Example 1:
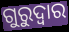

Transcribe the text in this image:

ଗୁରୁଦ୍ଵାର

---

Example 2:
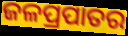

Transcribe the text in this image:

ଜଳପ୍ରପାତର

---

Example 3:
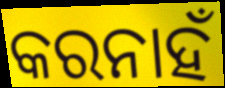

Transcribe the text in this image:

କରନାହଁ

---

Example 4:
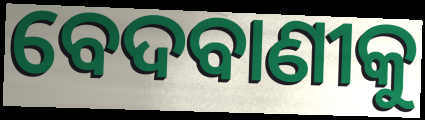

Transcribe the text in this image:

ବେଦବାଣୀକୁ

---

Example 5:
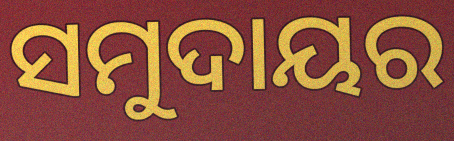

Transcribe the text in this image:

ସମୁଦାୟର